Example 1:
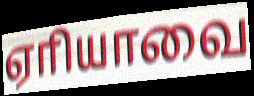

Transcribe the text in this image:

ஏரியாவை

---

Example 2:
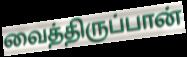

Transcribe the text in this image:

வைத்திருப்பான்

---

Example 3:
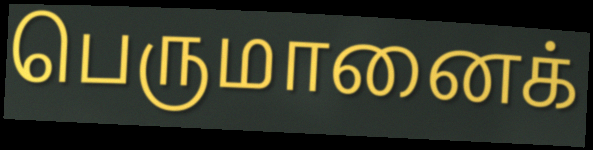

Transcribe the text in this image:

பெருமானைக்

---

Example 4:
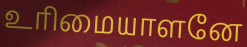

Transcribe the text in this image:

உரிமையாளனே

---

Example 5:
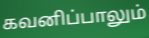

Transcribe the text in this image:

கவனிப்பாலும்